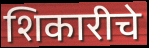
शिकारीचे